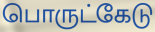
பொருட்கேடு